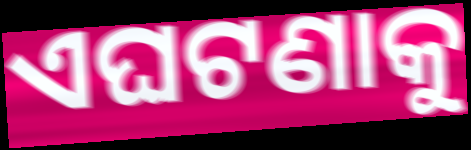
ଏଘଟଣାକୁ